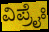
ವಿಪ್ರೈಃ